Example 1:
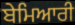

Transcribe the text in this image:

ਬੇਮਿਆਰੀ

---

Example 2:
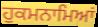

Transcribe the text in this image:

ਹੁਕਮਨਾਮਿਆਂ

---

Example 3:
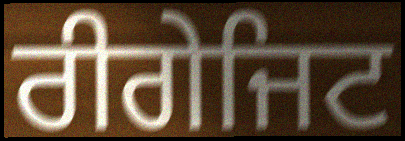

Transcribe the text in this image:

ਰੀਗੇਜਿਟ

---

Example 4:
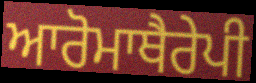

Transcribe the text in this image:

ਆਰੋਮਾਥੈਰੇਪੀ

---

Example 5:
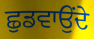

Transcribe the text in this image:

ਛੁਡਵਾਉਂਦੇ